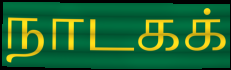
நாடகக்